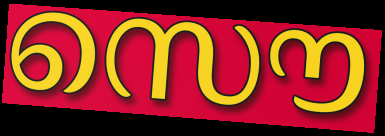
സൌ